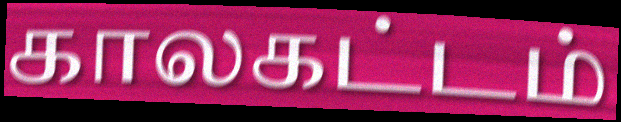
காலகட்டம்